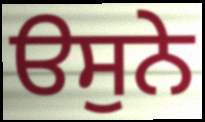
ੳਸੁਨੇ